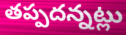
తప్పదన్నట్లు